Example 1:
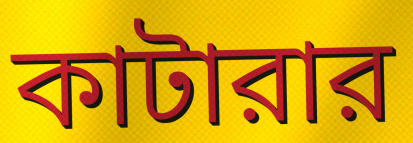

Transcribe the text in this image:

কাটারার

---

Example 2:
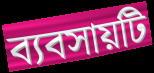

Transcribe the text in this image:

ব্যবসায়টি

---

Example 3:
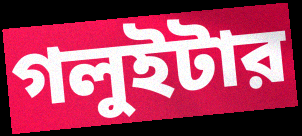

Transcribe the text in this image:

গলুইটার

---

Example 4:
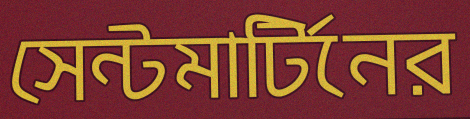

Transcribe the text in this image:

সেন্টমার্টিনের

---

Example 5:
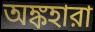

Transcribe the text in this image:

অঙ্কহারা